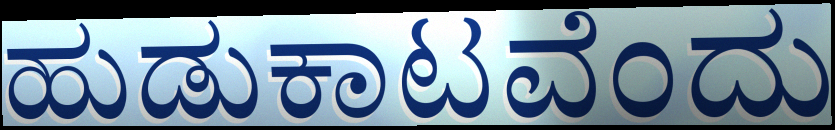
ಹುಡುಕಾಟವೆಂದು